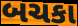
બચકા